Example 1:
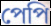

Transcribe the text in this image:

পেপি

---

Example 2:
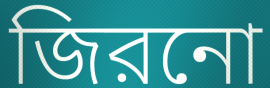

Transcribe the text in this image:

জিরনো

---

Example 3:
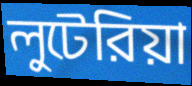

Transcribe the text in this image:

লুটেরিয়া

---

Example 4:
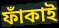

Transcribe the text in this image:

ফাঁকাই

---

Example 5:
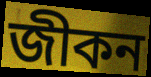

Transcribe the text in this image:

জীকন